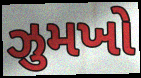
ઝુમખો